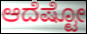
ಆದೆಷ್ಟೋ